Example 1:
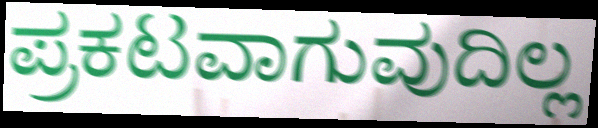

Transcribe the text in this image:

ಪ್ರಕಟವಾಗುವುದಿಲ್ಲ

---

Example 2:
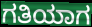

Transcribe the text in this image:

ಗತಿಯಾಗ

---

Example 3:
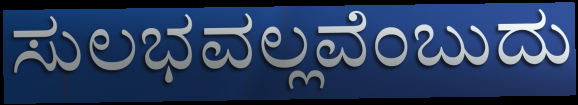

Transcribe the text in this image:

ಸುಲಭವಲ್ಲವೆಂಬುದು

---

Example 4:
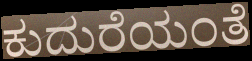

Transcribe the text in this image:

ಕುದುರೆಯಂತೆ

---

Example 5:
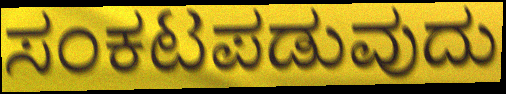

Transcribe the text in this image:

ಸಂಕಟಪಡುವುದು